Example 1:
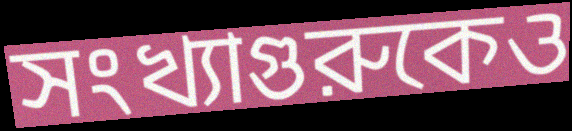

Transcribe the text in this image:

সংখ্যাগুরুকেও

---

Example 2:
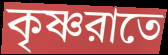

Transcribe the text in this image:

কৃষ্ণরাতে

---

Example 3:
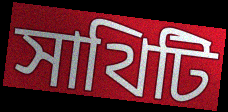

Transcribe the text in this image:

সাথিটি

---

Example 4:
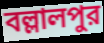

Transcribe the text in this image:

বল্লালপুর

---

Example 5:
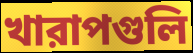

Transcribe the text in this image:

খারাপগুলি